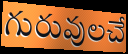
గురువులచే